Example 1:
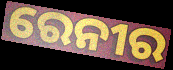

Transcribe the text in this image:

ରେନୀର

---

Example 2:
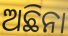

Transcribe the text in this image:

ଅଛିନା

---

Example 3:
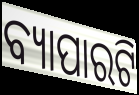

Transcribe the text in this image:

ବ୍ୟାପାରଟି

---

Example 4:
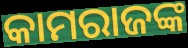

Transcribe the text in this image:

କାମରାଜଙ୍କ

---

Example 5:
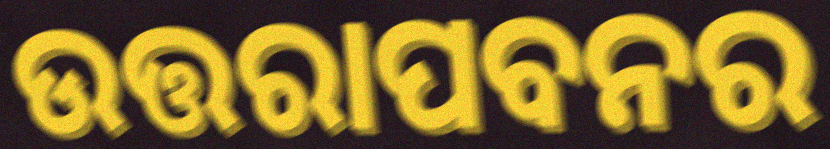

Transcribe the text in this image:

ଉତ୍ତରାପବନର